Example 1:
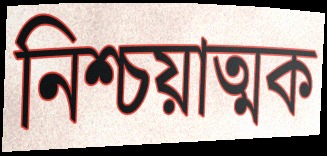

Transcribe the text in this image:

নিশ্চয়াত্মক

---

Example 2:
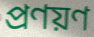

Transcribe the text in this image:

প্ৰণয়ণ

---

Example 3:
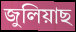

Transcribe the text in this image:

জুলিয়াছ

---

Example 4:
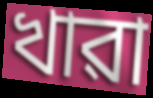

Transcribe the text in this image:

খাৱা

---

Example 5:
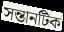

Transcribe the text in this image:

সন্তানটিক